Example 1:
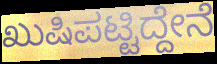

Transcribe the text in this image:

ಖುಷಿಪಟ್ಟಿದ್ದೇನೆ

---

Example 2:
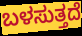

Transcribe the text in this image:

ಬಳಸುತ್ತದೆ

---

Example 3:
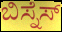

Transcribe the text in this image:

ಬಿಸ್ನೆಸ್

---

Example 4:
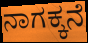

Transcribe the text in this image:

ನಾಗಕ್ಕನೆ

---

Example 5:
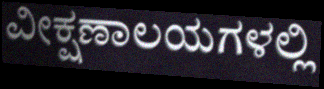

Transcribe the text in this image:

ವೀಕ್ಷಣಾಲಯಗಳಲ್ಲಿ